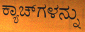
ಕ್ಯಾಚ್‌ಗಳನ್ನು